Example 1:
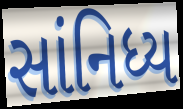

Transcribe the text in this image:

સાંનિધ્ય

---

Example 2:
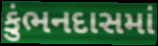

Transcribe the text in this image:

કુંભનદાસમાં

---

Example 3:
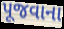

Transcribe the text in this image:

પૂજવાના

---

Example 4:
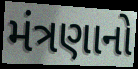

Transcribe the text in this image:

મંત્રણાનો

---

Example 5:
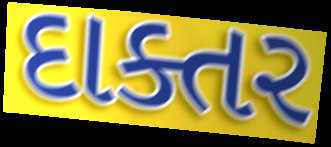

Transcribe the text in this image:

દાક્તર